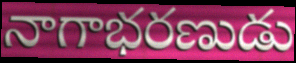
నాగాభరణుడు